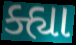
ક્હ્યા